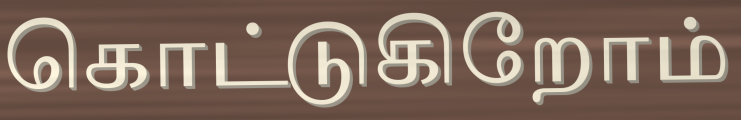
கொட்டுகிறோம்